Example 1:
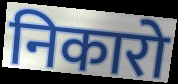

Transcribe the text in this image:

निकारो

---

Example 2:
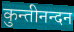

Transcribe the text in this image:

कुन्तीनन्दन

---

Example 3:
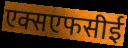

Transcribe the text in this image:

एक्सएफसीई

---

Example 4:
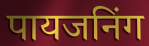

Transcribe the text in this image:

पायजनिंग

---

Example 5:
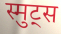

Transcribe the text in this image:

स्मुट्स